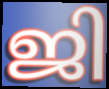
ജി